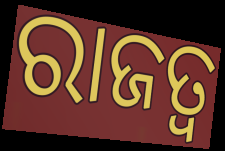
ରାଜତ୍ଵ